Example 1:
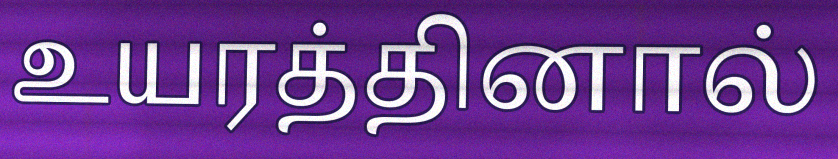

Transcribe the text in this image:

உயரத்தினால்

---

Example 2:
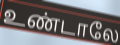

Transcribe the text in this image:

உண்டாலே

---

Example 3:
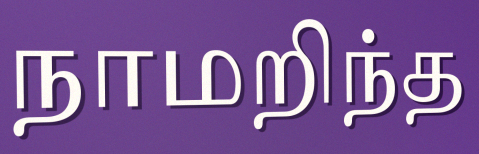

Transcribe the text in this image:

நாமறிந்த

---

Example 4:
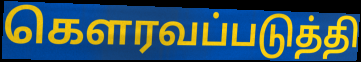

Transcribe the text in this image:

கெளரவப்படுத்தி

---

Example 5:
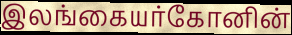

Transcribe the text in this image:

இலங்கையர்கோனின்